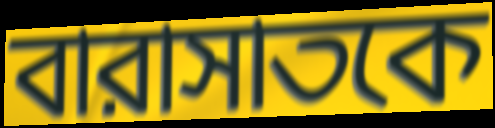
বারাসাতকে